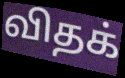
விதக்